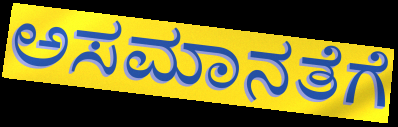
ಅಸಮಾನತೆಗೆ